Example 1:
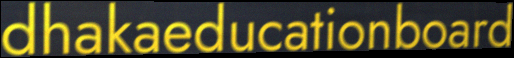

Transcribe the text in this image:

dhakaeducationboard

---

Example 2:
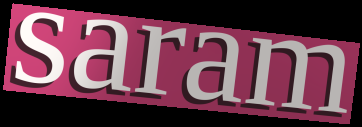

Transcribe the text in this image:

saram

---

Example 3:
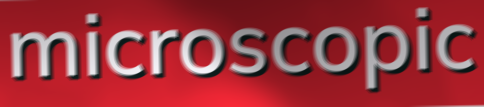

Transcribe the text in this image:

microscopic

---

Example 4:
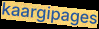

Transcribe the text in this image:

kaargipages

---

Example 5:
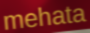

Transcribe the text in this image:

mehata